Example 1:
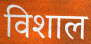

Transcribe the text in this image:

विशाल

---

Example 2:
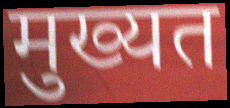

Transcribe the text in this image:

मुख्यत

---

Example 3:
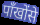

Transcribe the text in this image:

पाँखोंसे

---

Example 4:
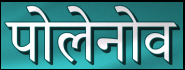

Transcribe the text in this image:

पोलेनोव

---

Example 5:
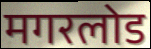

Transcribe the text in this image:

मगरलोड